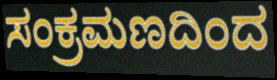
ಸಂಕ್ರಮಣದಿಂದ